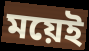
ময়েই